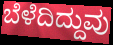
ಬೆಳೆದಿದ್ದುವು